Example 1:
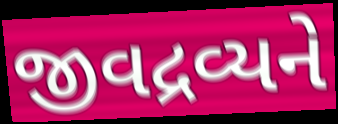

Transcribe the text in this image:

જીવદ્રવ્યને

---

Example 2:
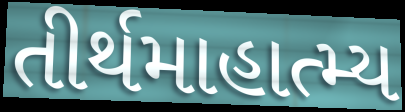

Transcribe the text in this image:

તીર્થમાહાત્મ્ય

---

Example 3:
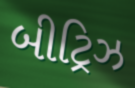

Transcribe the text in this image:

બીટ્રિઝ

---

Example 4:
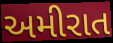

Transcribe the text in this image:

અમીરાત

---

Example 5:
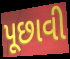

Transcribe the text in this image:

પૂછાવી